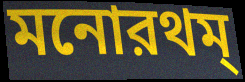
মনোরথম্